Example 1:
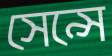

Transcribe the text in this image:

সেন্সে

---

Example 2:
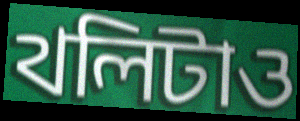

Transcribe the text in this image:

থলিটাও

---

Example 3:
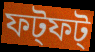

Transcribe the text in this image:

ফট্ফট্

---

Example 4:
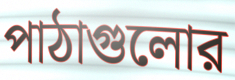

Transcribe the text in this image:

পাঠাগুলোর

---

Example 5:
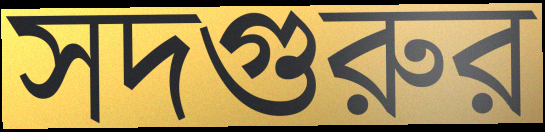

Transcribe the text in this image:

সদগুরুর